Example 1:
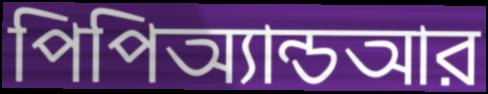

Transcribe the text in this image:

পিপিঅ্যান্ডআর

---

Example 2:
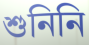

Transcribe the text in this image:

শুনিনি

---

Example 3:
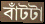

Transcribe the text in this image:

বাঁটটা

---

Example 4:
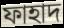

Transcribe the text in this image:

ফাহাদ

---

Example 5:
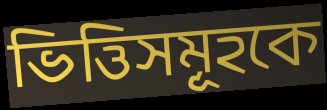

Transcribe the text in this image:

ভিত্তিসমূহকে